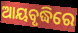
ଆୟବୃଦ୍ଧିରେ